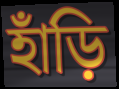
হাঁড়ি